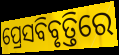
ପ୍ରେସବିବୃତ୍ତିରେ